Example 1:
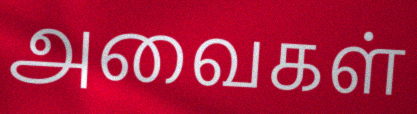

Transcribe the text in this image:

அவைகள்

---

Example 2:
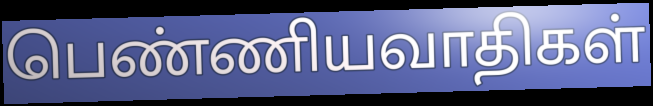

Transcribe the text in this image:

பெண்ணியவாதிகள்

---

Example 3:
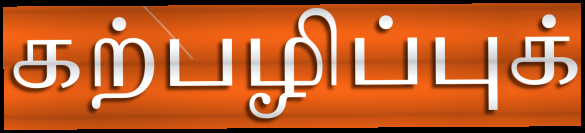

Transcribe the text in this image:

கற்பழிப்புக்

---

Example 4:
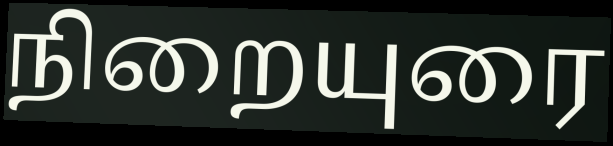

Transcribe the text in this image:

நிறையுரை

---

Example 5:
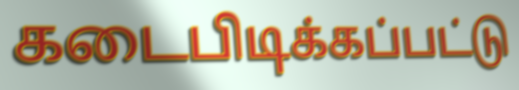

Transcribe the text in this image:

கடைபிடிக்கப்பட்டு